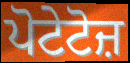
ਪੋਟੇਟੋਜ਼